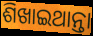
ଶିଖାଇଥାନ୍ତା